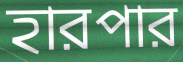
হারপার